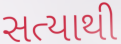
સત્યાથી